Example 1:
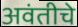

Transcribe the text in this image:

अवंतीचे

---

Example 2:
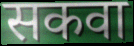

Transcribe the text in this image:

सकवा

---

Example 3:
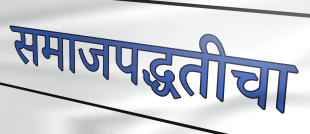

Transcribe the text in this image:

समाजपद्धतीचा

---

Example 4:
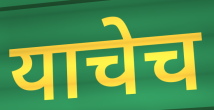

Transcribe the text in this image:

याचेच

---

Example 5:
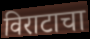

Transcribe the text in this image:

विराटाचा